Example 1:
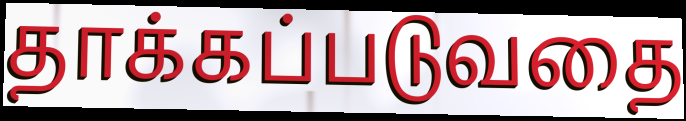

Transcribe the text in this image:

தாக்கப்படுவதை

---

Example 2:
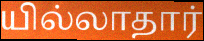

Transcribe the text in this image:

யில்லாதார்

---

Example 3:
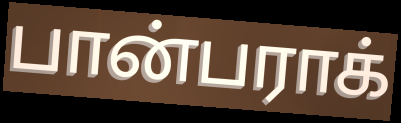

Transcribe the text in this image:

பான்பராக்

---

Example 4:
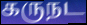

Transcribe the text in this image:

கருநட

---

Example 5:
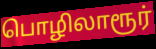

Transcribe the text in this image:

பொழிலாரூர்